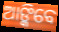
ଆଙ୍କିବେ